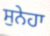
ਸੁਨੇਹਾ